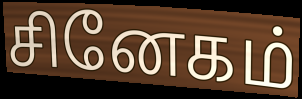
சினேகம்